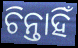
ଚିନ୍ତାହିଁ